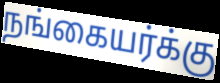
நங்கையர்க்கு